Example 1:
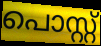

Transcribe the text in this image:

പൊസ്റ്റ്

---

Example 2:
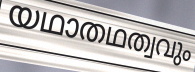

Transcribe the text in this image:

യഥാതഥത്വവും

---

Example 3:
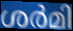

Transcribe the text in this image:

ശർമി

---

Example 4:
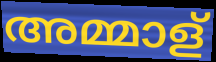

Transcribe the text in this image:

അമ്മാള്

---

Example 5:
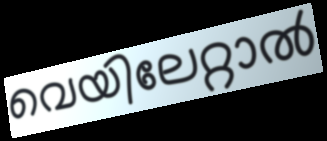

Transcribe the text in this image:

വെയിലേറ്റാൽ